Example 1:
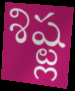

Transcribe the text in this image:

శిష్ట్ల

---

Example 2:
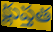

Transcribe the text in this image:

క్లుప్తత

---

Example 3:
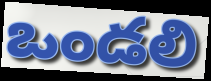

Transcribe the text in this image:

ఒండలి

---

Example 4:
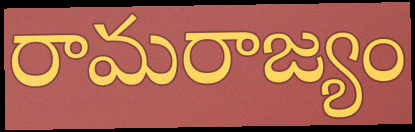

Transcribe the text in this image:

రామరాజ్యం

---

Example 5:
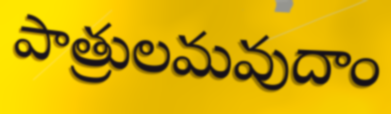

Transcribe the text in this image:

పాత్రులమవుదాం